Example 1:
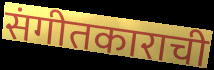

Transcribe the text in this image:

संगीतकाराची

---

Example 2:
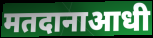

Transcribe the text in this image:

मतदानाआधी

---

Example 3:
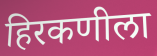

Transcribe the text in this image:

हिरकणीला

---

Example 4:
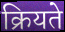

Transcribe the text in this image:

क्रियते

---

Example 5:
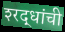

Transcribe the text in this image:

श्रद्धांची